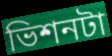
ভিশনটা